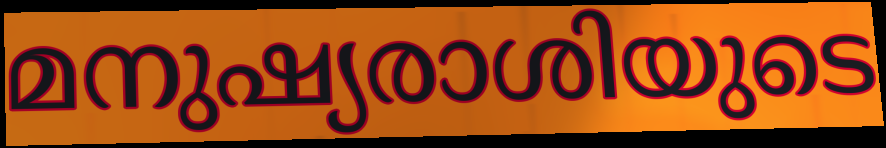
മനുഷ്യരാശിയുടെ